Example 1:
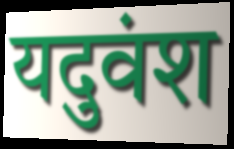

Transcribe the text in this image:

यदुवंश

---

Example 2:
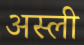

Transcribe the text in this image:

अस्ली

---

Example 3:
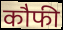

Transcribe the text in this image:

कौफी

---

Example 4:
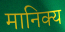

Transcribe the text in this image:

मानिक्य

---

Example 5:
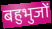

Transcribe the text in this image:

बहुभुजों